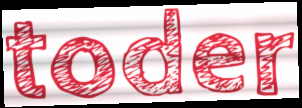
toder